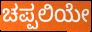
ಚಪ್ಪಲಿಯೇ